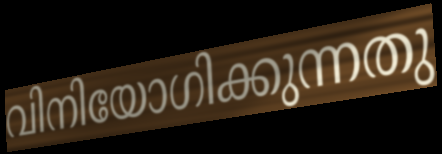
വിനിയോഗിക്കുന്നതു